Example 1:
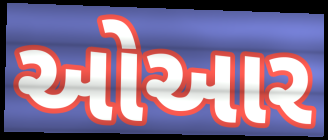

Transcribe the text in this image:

ઓઆર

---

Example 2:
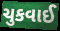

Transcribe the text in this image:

ચુકવાઈ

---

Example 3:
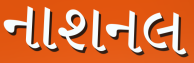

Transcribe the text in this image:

નાશનલ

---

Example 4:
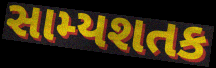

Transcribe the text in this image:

સામ્યશતક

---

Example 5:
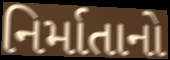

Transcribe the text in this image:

નિર્માતાનો